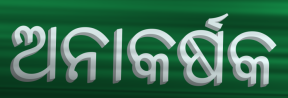
ଅନାକର୍ଷକ